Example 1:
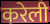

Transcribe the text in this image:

करेली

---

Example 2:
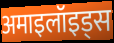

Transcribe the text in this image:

अमाइलॉइड्स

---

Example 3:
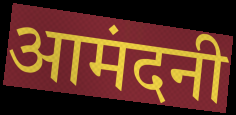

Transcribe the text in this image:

आमंदनी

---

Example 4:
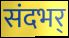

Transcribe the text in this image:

संदभर्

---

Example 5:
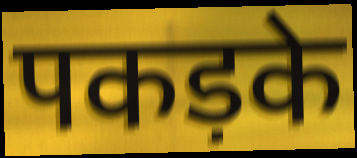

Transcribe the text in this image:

पकड़के